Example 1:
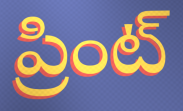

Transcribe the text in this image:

ప్రింట్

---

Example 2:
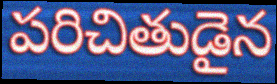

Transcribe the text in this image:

పరిచితుడైన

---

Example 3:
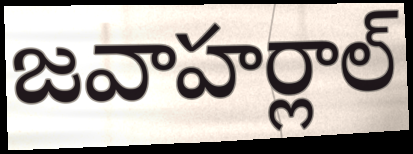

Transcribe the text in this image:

జవాహర్లాల్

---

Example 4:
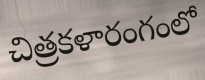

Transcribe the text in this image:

చిత్రకళారంగంలో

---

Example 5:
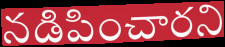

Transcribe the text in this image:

నడిపించారని